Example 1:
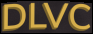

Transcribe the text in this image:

DLVC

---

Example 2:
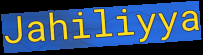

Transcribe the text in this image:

Jahiliyya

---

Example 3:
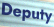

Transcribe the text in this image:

Deputy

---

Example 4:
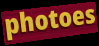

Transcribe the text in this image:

photoes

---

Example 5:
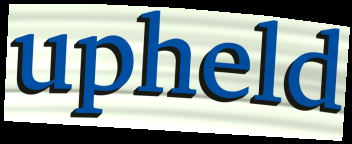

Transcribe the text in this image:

upheld